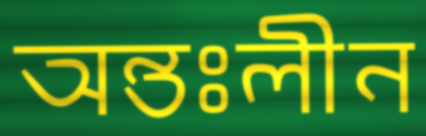
অন্তঃলীন